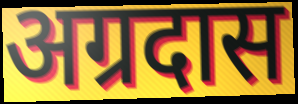
अग्रदास